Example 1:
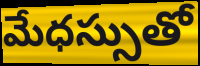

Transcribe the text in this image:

మేధస్సుతో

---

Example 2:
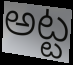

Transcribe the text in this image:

అట్ట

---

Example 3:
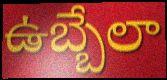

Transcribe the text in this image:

ఉబ్బేలా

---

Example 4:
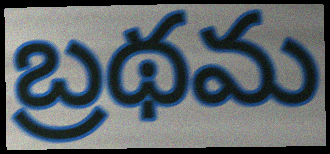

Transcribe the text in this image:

బ్రథమ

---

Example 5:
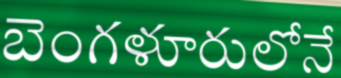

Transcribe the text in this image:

బెంగళూరులోనే